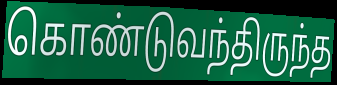
கொண்டுவந்திருந்த